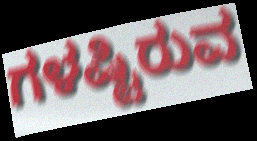
ಗಳಷ್ಟಿರುವ